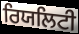
ਰਿਯਲਿਟੀ